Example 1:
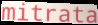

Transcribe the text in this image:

mitrata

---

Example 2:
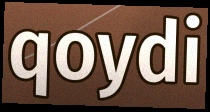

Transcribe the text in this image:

qoydi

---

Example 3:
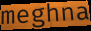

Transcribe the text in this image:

meghna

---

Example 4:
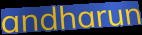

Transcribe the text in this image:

andharun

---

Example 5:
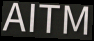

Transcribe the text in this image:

AITM